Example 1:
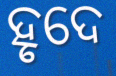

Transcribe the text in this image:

ହୃଦେ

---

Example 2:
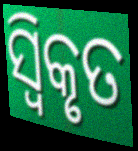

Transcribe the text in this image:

ସ୍ୱିକୃତ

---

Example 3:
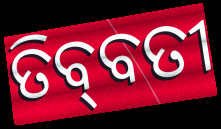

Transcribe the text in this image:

ତିବ୍‌ବତୀ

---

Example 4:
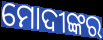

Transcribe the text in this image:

ମୋଦୀଙ୍କର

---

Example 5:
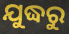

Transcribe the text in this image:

ଯୁଦ୍ଧରୁ